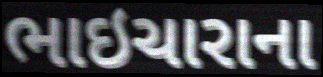
ભાઇચારાના